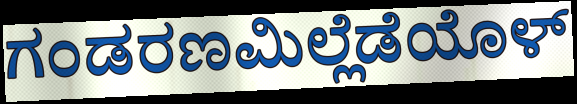
ಗಂಡರಣಮಿಲ್ಲೆಡೆಯೊಳ್